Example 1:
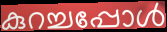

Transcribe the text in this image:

കുറച്ചപ്പോൾ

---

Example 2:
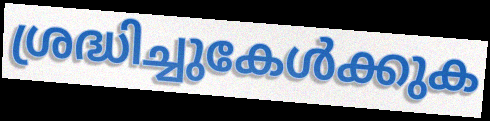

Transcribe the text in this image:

ശ്രദ്ധിച്ചുകേൾക്കുക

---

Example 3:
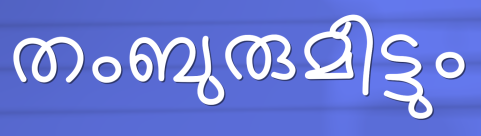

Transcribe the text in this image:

തംബുരുമീട്ടും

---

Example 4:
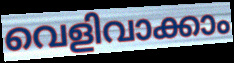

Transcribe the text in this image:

വെളിവാക്കാം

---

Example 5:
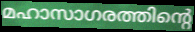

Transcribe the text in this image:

മഹാസാഗരത്തിന്റെ